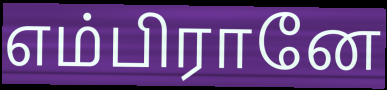
எம்பிரானே